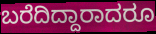
ಬರೆದಿದ್ದಾರಾದರೂ